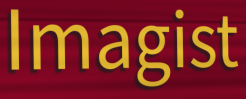
Imagist